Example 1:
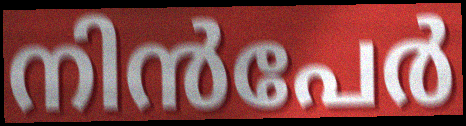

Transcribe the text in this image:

നിൻപേർ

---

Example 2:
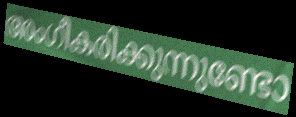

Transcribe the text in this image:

അംഗീകരിക്കുന്നുണ്ടോ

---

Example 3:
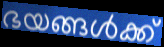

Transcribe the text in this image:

ഭയങ്ങൾക്ക്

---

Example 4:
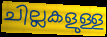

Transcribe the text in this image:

ചില്ലകളുള്ള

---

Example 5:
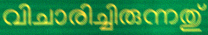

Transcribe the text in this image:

വിചാരിച്ചിരുന്നതു്